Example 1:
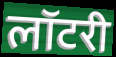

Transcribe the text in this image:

लॉटरी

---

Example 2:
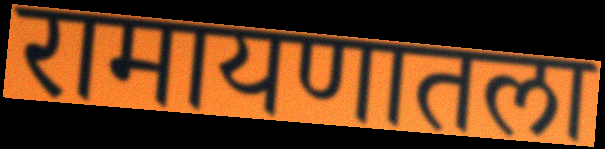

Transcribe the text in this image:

रामायणातला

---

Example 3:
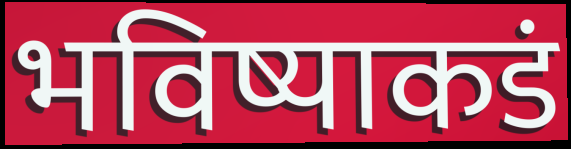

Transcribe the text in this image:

भविष्याकडं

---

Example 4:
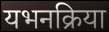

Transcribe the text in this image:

यभनक्रिया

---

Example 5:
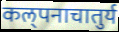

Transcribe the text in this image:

कल्पनाचातुर्य